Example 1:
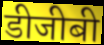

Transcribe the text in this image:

डीजीबी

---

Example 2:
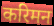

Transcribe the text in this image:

करिमन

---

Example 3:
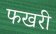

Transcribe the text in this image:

फखरी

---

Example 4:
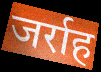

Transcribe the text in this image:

जर्राह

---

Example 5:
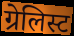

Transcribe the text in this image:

ग्रेलिस्ट